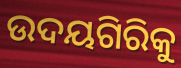
ଉଦୟଗିରିକୁ